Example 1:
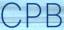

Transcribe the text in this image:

CPB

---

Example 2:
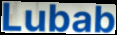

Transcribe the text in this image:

Lubab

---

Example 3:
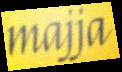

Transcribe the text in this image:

majja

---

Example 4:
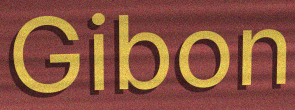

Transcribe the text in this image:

Gibon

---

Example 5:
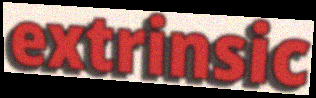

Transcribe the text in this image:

extrinsic